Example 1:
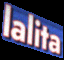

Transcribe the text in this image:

lalita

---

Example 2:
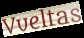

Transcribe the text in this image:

Vueltas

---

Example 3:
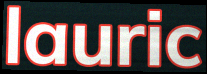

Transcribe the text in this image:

lauric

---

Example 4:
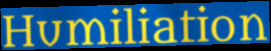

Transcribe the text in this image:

Humiliation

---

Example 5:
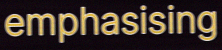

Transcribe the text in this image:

emphasising